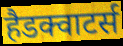
हैडक्वाटर्स